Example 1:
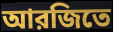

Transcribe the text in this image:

আরজিতে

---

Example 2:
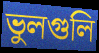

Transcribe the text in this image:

ভুলগুলি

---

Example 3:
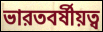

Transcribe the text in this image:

ভারতবর্ষীয়ত্ব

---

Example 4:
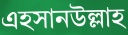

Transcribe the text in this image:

এহসানউল্লাহ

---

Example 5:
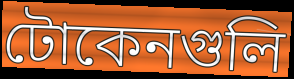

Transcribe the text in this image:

টোকেনগুলি